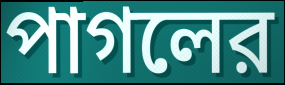
পাগলের